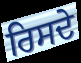
ਰਿਸਦੇ